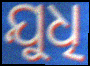
ଯୁଧି